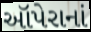
ઑપેરાનાં